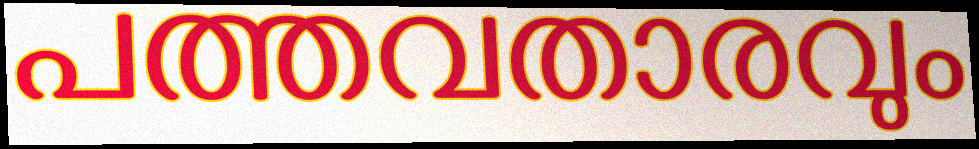
പത്തവതാരവും